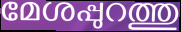
മേശപ്പുറത്തു